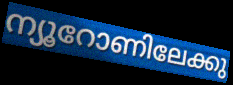
ന്യൂറോണിലേക്കു